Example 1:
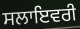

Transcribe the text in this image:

ਸਲਾਇਵਰੀ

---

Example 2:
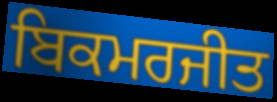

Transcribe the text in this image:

ਬਿਕਮਰਜੀਤ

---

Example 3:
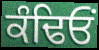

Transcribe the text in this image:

ਕੰਢਿਓਂ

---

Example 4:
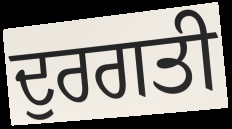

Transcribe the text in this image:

ਦੁਰਗਤੀ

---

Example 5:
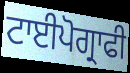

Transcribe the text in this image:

ਟਾਈਪੋਗ੍ਰਾਫੀ